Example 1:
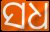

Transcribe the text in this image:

ସଧ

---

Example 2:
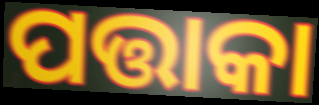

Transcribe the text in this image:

ପତ୍ତାକା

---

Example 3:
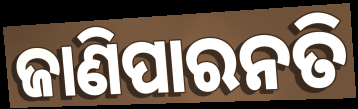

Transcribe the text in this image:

ଜାଣିପାରନତି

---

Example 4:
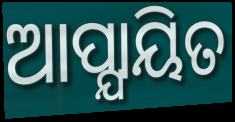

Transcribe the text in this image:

ଆପ୍ଯାୟିତ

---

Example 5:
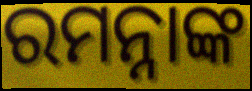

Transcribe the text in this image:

ରମନ୍ନାଙ୍କ